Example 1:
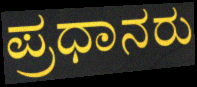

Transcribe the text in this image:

ಪ್ರಧಾನರು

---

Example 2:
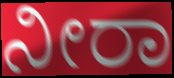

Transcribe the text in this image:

ನೀರಾ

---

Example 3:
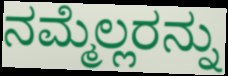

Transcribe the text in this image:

ನಮ್ಮೆಲ್ಲರನ್ನು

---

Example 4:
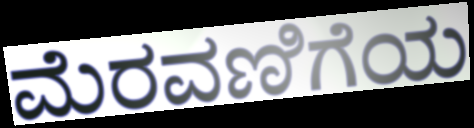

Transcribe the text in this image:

ಮೆರವಣಿಗೆಯ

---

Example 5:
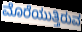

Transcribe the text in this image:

ಮೊರೆಯುತ್ತಿರುವ